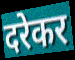
दरेकर